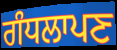
ਗੰਧਲਾਪਣ